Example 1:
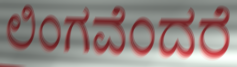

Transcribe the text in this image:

ಲಿಂಗವೆಂದರೆ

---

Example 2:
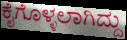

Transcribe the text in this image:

ಕೈಗೊಳ್ಳಲಾಗಿದ್ದು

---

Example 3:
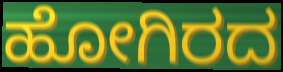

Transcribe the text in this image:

ಹೋಗಿರದ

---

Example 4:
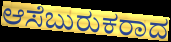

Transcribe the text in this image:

ಆಸೆಬುರುಕರಾದ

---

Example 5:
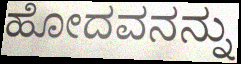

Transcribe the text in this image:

ಹೋದವನನ್ನು